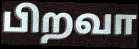
பிறவா